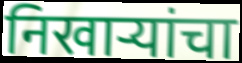
निखार्‍यांचा